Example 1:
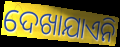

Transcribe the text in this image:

ଦେଖାଯାଏନି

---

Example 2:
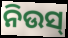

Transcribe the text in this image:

ନିଉସ୍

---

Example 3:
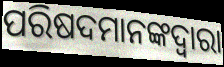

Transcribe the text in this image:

ପରିଷଦମାନଙ୍କଦ୍ୱାରା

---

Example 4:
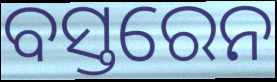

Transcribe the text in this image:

ବସ୍ତରେନ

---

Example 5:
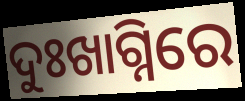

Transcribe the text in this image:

ଦୁଃଖାଗ୍ନିରେ